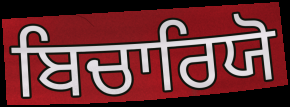
ਬਿਚਾਰਿਯੋ